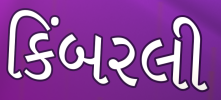
કિંબરલી